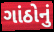
ગાંઠોનું